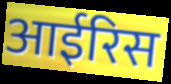
आईरिस